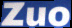
Zuo